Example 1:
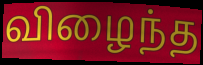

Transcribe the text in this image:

விழைந்த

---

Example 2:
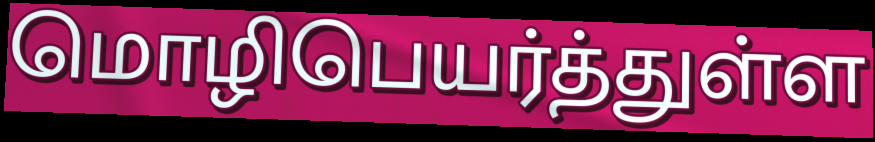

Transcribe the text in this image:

மொழிபெயர்த்துள்ள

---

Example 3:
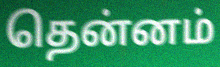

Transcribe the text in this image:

தென்னம்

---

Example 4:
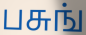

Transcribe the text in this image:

பசுங்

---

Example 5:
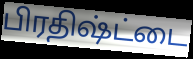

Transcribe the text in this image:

பிரதிஷ்ட்டை